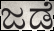
ಜಡೆ